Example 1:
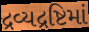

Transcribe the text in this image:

દ્રવ્યદ્રષ્ટિમાં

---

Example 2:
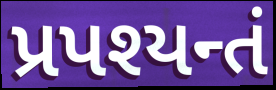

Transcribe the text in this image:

પ્રપશ્યન્તં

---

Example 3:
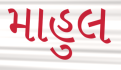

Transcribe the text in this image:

માહુલ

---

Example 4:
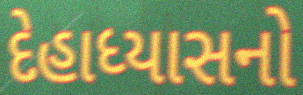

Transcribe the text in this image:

દેહાધ્યાસનો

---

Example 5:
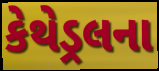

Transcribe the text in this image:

કેથેડ્રલના